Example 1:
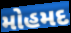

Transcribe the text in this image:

મોહમદ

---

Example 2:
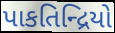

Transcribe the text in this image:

પાકતિન્દ્રિયો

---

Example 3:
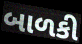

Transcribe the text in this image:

બાળકી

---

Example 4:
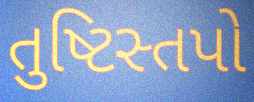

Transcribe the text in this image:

તુષ્ટિસ્તપો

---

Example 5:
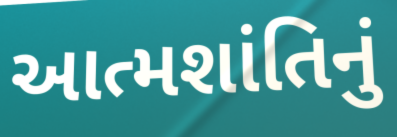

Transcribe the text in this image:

આત્મશાંતિનું